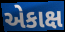
એકાક્ષ